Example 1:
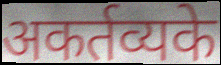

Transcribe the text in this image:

अकर्तव्यके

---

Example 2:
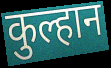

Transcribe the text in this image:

कुल्हान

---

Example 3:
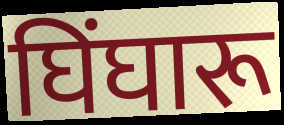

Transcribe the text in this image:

घिंघारू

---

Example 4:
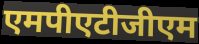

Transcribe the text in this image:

एमपीएटीजीएम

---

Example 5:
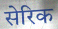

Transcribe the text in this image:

सेरिक